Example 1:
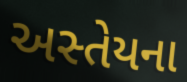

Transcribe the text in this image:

અસ્તેયના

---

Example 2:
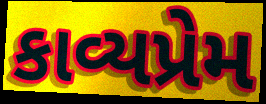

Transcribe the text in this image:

કાવ્યપ્રેમ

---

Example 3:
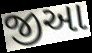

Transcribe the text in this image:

જીઆ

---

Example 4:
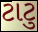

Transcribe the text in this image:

ટાટુ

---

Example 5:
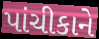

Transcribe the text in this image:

પાંચીકાને